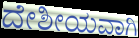
ದೇಶೀಯವಾಗಿ